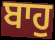
ਬਾਹੁ